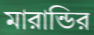
মারান্ডির